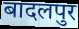
बादलपुर